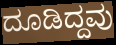
ದೂಡಿದ್ದವು